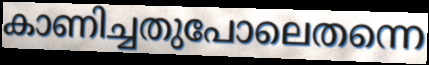
കാണിച്ചതുപോലെതന്നെ